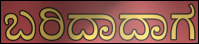
ಬರಿದಾದಾಗ